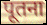
पूतना